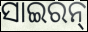
ସାଇରନ୍